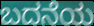
ಬದನೆಯ